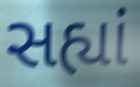
સહ્યાં